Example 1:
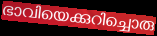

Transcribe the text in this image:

ഭാവിയെക്കുറിച്ചൊരു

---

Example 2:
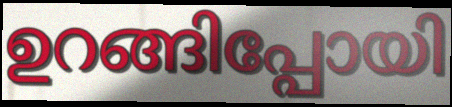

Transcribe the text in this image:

ഉറങ്ങിപ്പോയി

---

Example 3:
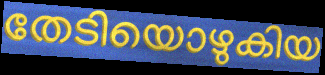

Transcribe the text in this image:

തേടിയൊഴുകിയ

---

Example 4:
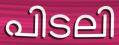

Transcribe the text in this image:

പിടലി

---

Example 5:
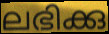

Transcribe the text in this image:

ലഭിക്കു